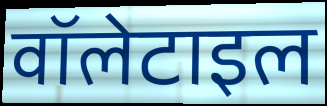
वॉलेटाइल